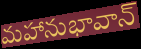
మహానుభావాన్